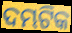
ଦମ୍ଭଟିକ